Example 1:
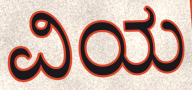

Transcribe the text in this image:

ವಿಯ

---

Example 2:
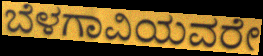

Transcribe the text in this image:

ಬೆಳಗಾವಿಯವರೇ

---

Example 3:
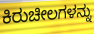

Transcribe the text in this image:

ಕಿರುಚೀಲಗಳನ್ನು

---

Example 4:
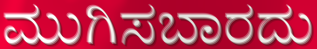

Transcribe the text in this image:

ಮುಗಿಸಬಾರದು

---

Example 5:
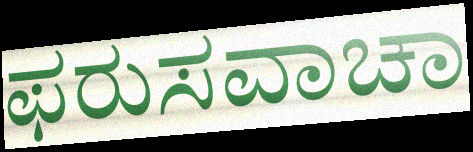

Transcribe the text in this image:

ಫರುಸವಾಚಾ